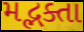
મદ્ભક્તા